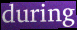
during